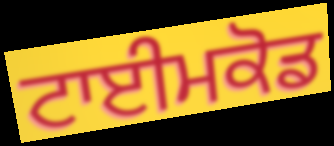
ਟਾਈਮਕੋਡ